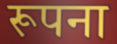
रूपना